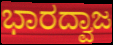
ಭಾರದ್ವಾಜ